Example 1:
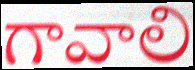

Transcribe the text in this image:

గావాలి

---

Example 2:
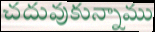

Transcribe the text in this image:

చదువుకున్నాము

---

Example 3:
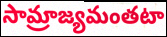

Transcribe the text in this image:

సామ్రాజ్యమంతటా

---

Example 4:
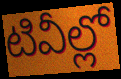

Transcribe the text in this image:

టివీల్లో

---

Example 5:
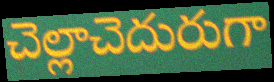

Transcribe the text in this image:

చెల్లాచెదురుగా